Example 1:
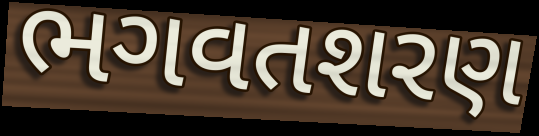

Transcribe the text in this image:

ભગવતશરણ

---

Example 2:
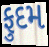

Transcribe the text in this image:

ફુદમ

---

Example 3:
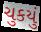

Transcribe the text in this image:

ચુકયું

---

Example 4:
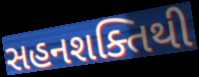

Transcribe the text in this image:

સહનશક્તિથી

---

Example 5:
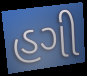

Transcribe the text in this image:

હગી